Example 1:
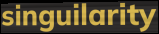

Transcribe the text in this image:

singuilarity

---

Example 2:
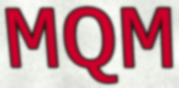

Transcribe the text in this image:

MQM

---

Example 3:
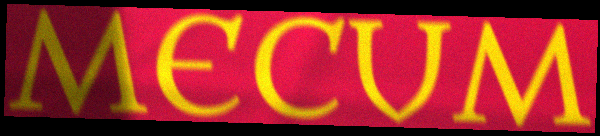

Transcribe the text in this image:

MECUM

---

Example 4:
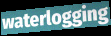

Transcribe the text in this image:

waterlogging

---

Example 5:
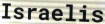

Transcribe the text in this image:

Israelis